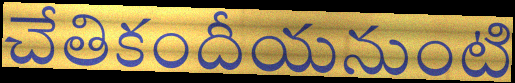
చేతికందీయనుంటి